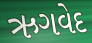
ઋગવેદ